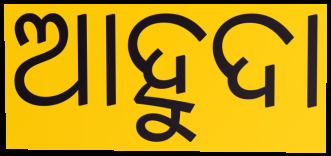
ଆହୁଦା